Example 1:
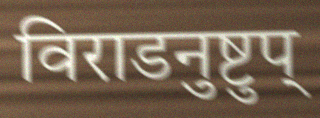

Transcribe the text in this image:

विराडनुष्टुप्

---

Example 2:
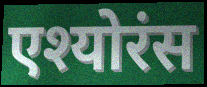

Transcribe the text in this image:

एश्योरंस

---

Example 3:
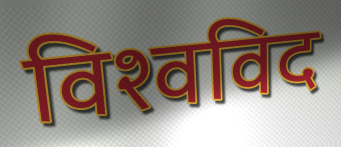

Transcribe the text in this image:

विश्वविद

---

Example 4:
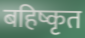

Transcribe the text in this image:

बहिष्कृत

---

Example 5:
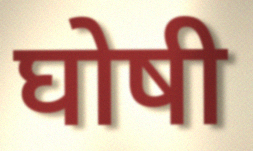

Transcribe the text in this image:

घोषी